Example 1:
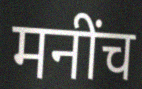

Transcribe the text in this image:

मनींच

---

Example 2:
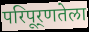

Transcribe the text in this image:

परिपूर्णतेला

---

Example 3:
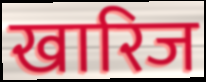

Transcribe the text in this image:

खारिज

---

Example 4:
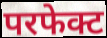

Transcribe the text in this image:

परफेक्ट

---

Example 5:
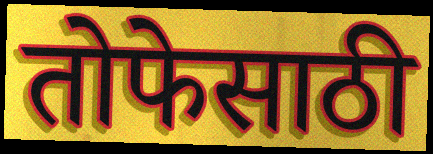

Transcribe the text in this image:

तोफेसाठी